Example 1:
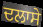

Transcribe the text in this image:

ਦਲਾਸੇ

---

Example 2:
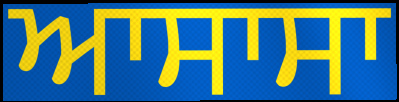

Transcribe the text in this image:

ਆਸਾਸਾ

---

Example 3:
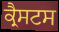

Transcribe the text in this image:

ਕ੍ਰੈਸਟਸ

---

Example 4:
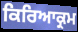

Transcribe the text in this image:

ਕਿਰਿਆਕ੍ਰਮ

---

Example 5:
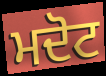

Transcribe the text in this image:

ਮਦੋਟ